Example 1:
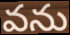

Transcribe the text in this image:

వను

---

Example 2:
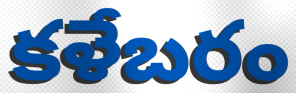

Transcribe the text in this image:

కళేబరం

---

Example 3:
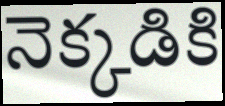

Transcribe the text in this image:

నెక్కడికి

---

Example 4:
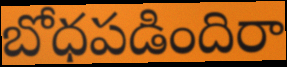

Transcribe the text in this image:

బోధపడిందిరా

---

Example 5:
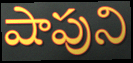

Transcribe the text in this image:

షాపుని